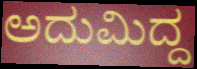
ಅದುಮಿದ್ದ